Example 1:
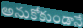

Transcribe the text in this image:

అనుకోకుండానే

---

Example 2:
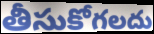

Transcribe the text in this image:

తీసుకోగలదు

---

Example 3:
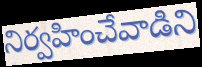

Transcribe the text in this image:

నిర్వహించేవాడిని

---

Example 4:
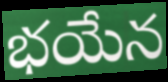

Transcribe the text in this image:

భయేన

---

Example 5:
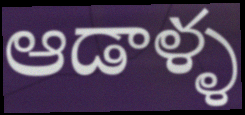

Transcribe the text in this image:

ఆడాళ్ళ